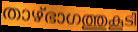
താഴ്ഭാഗത്തുകൂടി